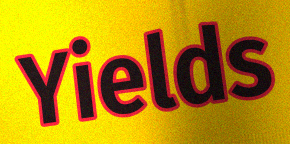
Yields